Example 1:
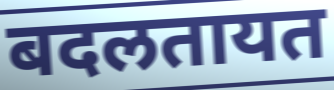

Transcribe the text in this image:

बदलतायत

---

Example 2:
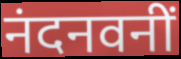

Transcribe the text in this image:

नंदनवनीं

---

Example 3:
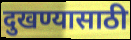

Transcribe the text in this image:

दुखण्यासाठी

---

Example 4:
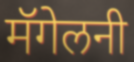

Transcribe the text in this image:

मॅगेलनी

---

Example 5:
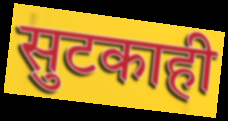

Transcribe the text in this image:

सुटकाही